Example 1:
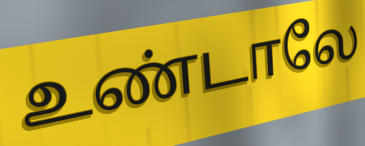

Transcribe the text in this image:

உண்டாலே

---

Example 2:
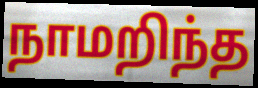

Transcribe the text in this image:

நாமறிந்த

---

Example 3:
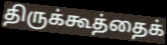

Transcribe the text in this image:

திருக்கூத்தைக்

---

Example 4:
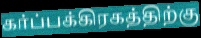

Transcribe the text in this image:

கர்ப்பக்கிரகத்திற்கு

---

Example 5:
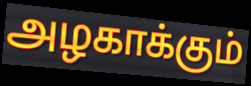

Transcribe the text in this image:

அழகாக்கும்